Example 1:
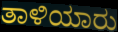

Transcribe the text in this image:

ತಾಳಿಯಾರು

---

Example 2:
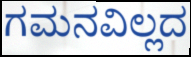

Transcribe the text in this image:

ಗಮನವಿಲ್ಲದ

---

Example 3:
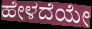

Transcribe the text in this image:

ಹೇಳದೆಯೇ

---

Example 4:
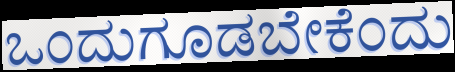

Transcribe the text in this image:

ಒಂದುಗೂಡಬೇಕೆಂದು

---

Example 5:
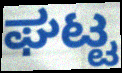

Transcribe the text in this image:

ಘಟ್ಟ